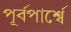
পূর্বপার্শ্বে